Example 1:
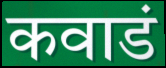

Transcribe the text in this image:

कवाडं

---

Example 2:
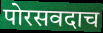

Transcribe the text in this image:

पोरसवदाच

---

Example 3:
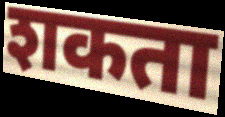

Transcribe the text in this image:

शकता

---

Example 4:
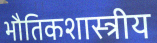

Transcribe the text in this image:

भौतिकशास्त्रीय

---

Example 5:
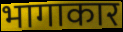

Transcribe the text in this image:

भागाकार